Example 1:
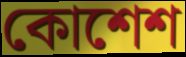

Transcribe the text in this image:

কোশেশ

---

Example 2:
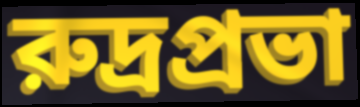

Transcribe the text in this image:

রুদ্রপ্রভা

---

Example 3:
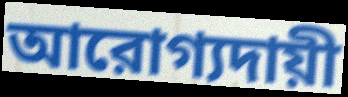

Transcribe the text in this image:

আরোগ্যদায়ী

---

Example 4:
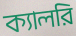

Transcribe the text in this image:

ক্যালরি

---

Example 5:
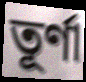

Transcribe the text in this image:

তূর্ণা